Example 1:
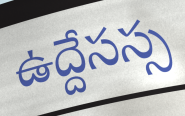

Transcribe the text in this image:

ఉద్దేసస్స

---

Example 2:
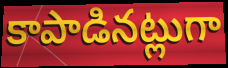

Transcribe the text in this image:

కాపాడినట్లుగా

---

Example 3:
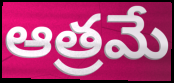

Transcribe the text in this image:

ఆత్రమే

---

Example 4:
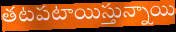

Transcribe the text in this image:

తటపటాయిస్తున్నాయి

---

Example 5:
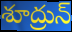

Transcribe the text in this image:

శూద్రున్